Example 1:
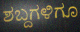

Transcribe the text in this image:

ಶಬ್ದಗಳಿಗೂ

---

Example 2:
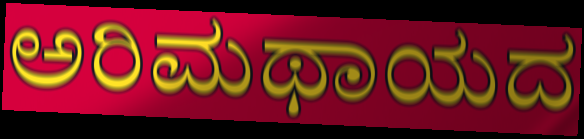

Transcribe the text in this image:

ಅರಿಮಥಾಯದ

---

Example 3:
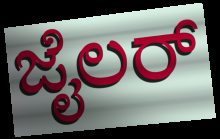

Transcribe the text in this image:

ಜೈಲರ್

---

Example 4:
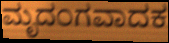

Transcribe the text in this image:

ಮೃದಂಗವಾದಕ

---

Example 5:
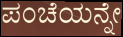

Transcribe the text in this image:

ಪಂಚೆಯನ್ನೇ